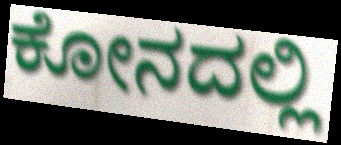
ಕೋನದಲ್ಲಿ